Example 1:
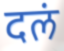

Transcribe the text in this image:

दलं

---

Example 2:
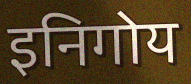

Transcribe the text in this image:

इनिगोय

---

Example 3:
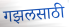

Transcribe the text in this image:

गझलसाठी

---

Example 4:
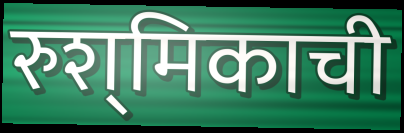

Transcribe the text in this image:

रुश्मिकाची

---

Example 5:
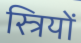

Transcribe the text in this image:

स्त्रियों